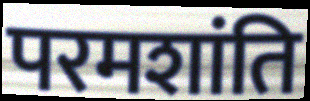
परमशांति